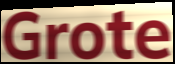
Grote